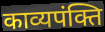
काव्यपंक्ति